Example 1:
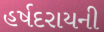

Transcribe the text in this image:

હર્ષદરાયની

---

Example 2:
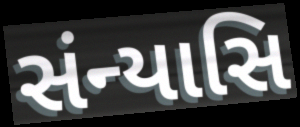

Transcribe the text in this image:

સંન્યાસિ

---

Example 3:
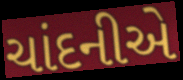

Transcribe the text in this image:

ચાંદનીએ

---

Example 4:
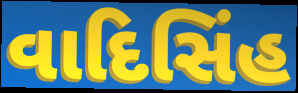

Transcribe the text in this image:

વાદિસિંહ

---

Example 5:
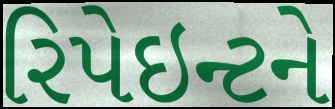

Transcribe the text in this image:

રિપેઇન્ટને